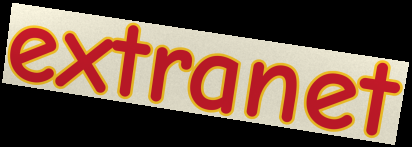
extranet